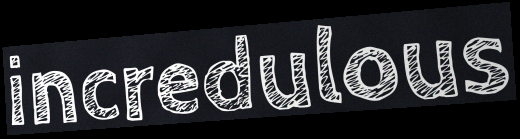
incredulous